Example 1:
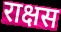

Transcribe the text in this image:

राक्षस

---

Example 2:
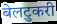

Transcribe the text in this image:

बेलटुकरी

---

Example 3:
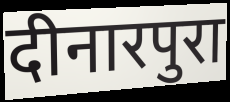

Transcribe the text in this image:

दीनारपुरा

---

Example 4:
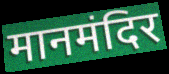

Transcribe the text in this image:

मानमंदिर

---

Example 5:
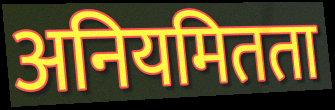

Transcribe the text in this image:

अनियमितता